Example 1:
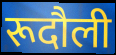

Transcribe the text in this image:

रूदौली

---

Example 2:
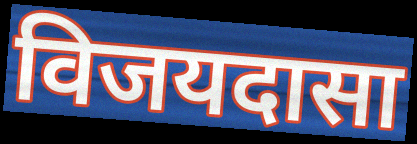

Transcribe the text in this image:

विजयदासा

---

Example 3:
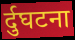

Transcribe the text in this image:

र्दुघटना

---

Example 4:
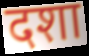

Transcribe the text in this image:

दशा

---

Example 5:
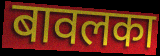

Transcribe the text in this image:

बावलका